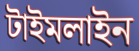
টাইমলাইন